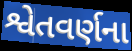
શ્વેતવર્ણના